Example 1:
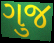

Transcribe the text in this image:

ગુજ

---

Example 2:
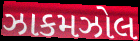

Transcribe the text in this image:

ઝાકમઝોલ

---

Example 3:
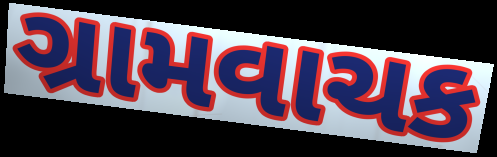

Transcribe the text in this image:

ગ્રામવાચક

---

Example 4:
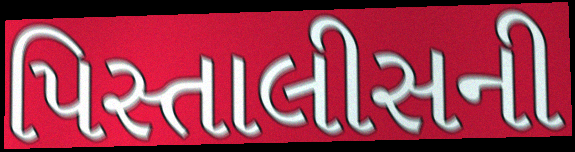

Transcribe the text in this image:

પિસ્તાલીસની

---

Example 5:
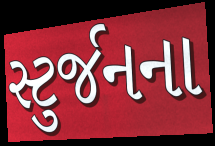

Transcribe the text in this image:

સ્ટુર્જનના